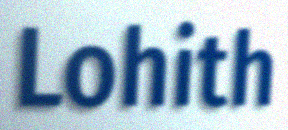
Lohith